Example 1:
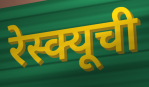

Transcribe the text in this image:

रेस्क्यूची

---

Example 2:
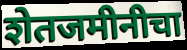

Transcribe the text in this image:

शेतजमीनीचा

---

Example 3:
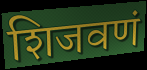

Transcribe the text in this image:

शिजवणं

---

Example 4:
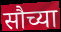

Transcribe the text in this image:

सौच्या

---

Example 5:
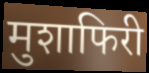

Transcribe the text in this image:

मुशाफिरी